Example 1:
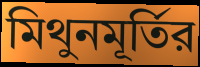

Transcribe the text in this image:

মিথুনমূর্তির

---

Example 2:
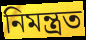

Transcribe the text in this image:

নিমন্ত্রত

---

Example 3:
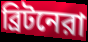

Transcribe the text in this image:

ব্রিটনেরা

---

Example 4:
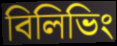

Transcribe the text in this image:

বিলিভিং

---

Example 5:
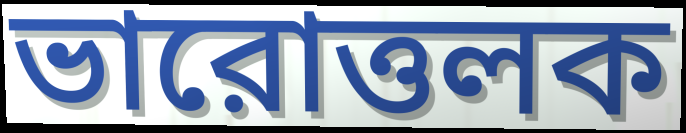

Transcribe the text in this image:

ভারোত্তলক